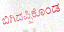
ಬಿಗಿದಪ್ಪಿಕೊಂಡ